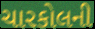
ચારકોલની